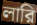
লারি